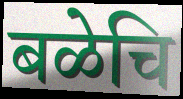
बळेचि